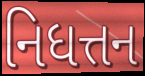
નિધત્તન